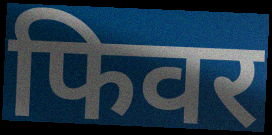
फिवर